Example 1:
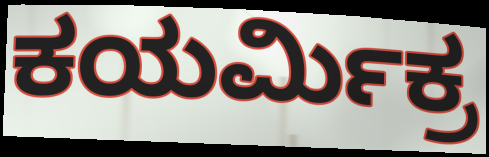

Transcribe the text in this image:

ಕಯರ್ಮಿಕ್ರ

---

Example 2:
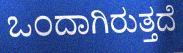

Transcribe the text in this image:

ಒಂದಾಗಿರುತ್ತದೆ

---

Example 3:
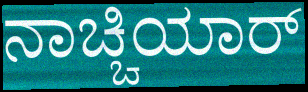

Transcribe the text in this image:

ನಾಚ್ಚಿಯಾರ್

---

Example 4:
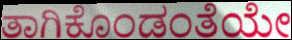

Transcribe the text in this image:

ತಾಗಿಕೊಂಡಂತೆಯೇ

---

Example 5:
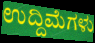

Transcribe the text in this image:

ಉದ್ದಿಮೆಗಳು